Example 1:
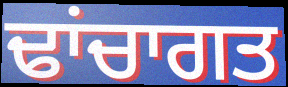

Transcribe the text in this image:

ਢਾਂਚਾਗਤ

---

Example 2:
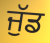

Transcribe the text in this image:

ਜੁੱਡ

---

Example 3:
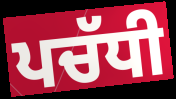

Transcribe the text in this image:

ਪਚੱਧੀ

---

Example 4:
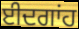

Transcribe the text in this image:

ਈਦਗਾਂਹ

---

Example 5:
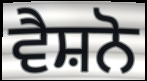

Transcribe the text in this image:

ਵੈਸ਼ਨੋ